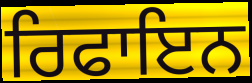
ਰਿਫਾਇਨ